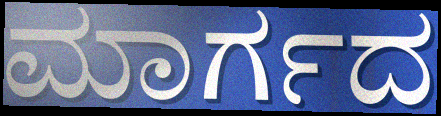
ಮಾರ್ಗದ